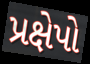
પ્રક્ષેપો